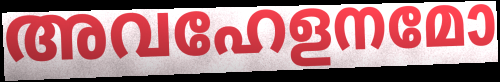
അവഹേളനമോ